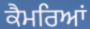
ਕੈਮਰਿਆਂ